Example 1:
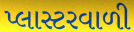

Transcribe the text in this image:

પ્લાસ્ટરવાળી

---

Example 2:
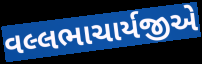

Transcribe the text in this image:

વલ્લભાચાર્યજીએ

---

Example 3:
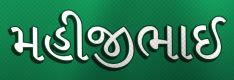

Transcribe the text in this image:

મહીજીભાઈ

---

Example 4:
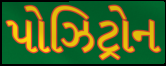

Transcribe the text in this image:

પોઝિટ્રોન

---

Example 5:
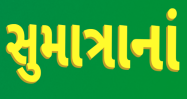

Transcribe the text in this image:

સુમાત્રાનાં